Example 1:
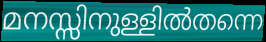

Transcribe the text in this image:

മനസ്സിനുള്ളിൽതന്നെ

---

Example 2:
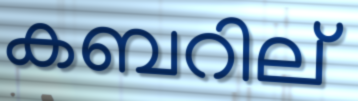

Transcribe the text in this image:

കബറില്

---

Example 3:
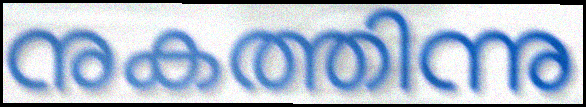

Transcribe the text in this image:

നുകത്തിന്നു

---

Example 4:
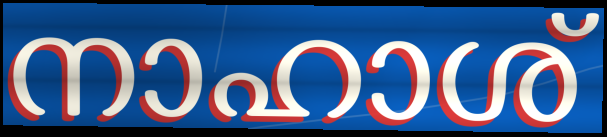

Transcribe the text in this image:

നാഹാശ്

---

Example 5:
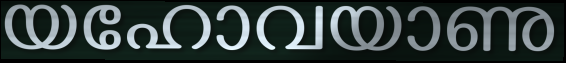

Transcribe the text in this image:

യഹോവയാണു